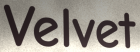
Velvet